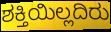
ಶಕ್ತಿಯಿಲ್ಲದಿರು